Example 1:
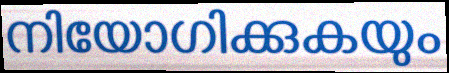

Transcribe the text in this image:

നിയോഗിക്കുകയും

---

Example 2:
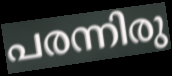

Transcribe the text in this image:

പരന്നിരു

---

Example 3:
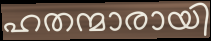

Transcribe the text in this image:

ഹതന്മാരായി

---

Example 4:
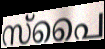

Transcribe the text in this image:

സ്പൈ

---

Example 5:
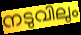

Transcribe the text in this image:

നടുവിലും